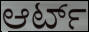
ಆರ್ಟ್